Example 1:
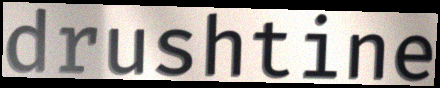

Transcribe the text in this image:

drushtine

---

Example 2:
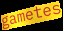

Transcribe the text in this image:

gametes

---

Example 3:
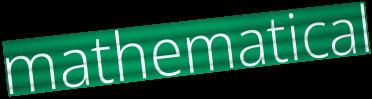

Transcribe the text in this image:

mathematical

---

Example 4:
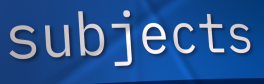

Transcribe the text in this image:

subjects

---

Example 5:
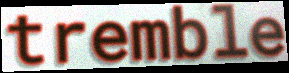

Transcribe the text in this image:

tremble